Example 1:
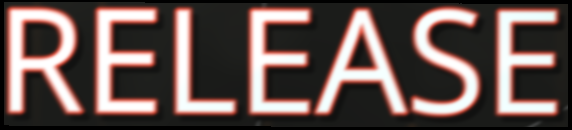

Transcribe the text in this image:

RELEASE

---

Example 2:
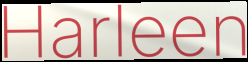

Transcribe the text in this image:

Harleen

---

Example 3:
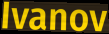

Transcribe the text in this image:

Ivanov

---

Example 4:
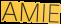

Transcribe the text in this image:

AMIE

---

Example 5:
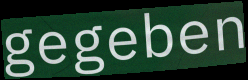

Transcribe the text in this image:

gegeben